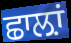
ਛਾਲ਼ਾਂ